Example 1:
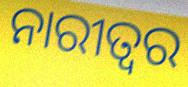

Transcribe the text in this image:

ନାରୀତ୍ୱର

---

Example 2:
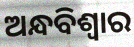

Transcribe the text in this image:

ଅନ୍ଧବିଶ୍ୱାର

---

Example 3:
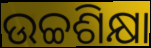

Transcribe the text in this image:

ଉଚ୍ଚଶିକ୍ଷା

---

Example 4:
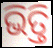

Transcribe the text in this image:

ଭିତ୍ତି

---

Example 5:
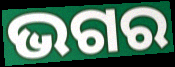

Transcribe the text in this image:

ଭଗର